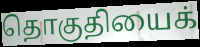
தொகுதியைக்